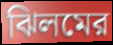
ঝিলমের